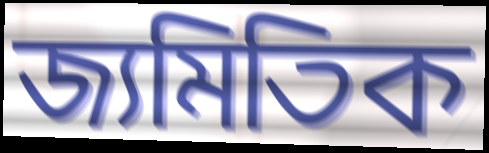
জ্যমিতিক